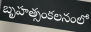
బృహత్సంకలనంలో